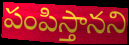
పంపిస్తానని